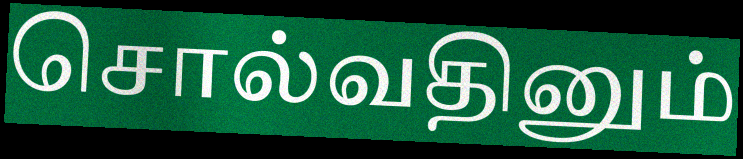
சொல்வதினும்